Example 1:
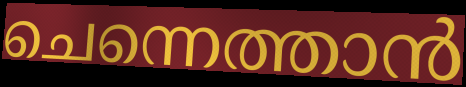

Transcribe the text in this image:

ചെന്നെത്താൻ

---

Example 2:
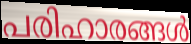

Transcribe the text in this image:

പരിഹാരങ്ങൾ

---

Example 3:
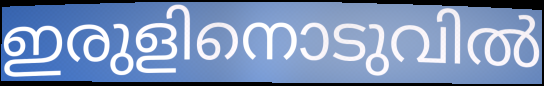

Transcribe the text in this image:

ഇരുളിനൊടുവിൽ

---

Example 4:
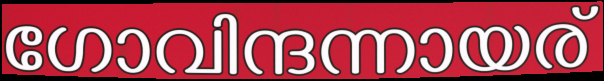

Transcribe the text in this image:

ഗോവിന്ദന്നായര്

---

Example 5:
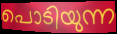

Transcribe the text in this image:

പൊടിയുന്ന